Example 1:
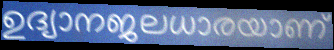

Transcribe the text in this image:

ഉദ്യാനജലധാരയാണ്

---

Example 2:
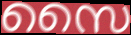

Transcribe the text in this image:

സൈ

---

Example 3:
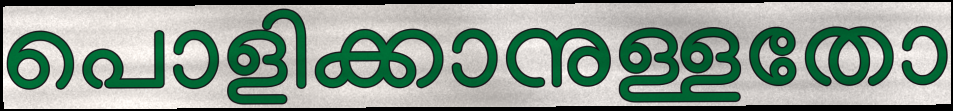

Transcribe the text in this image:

പൊളിക്കാനുള്ളതോ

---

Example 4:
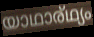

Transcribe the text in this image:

യാഥാര്ഥ്യം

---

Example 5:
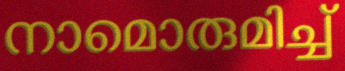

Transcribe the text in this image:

നാമൊരുമിച്ച്